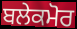
ਬਲੇਕਮੋਰ